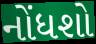
નોંધશો